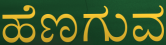
ಹೆಣಗುವ